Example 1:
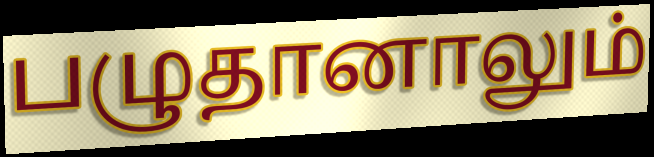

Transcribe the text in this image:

பழுதானாலும்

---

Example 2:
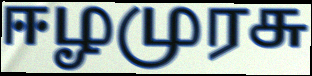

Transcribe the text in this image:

ஈழமுரசு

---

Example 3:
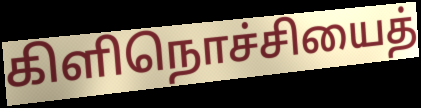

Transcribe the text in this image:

கிளிநொச்சியைத்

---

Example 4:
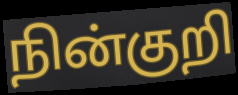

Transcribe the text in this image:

நின்குறி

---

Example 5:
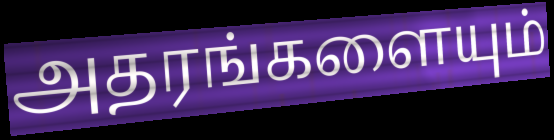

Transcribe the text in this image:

அதரங்களையும்